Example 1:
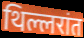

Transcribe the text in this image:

थिल्लरांत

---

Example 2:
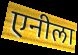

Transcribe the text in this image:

एनीला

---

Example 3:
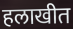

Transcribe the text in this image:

हलाखीत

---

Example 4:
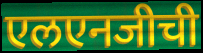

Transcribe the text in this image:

एलएनजीची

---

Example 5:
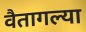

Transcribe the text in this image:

वैतागल्या